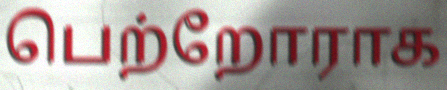
பெற்றோராக